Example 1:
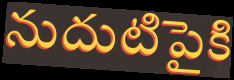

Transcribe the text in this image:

నుదుటిపైకి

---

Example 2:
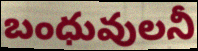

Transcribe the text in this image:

బంధువులనీ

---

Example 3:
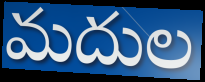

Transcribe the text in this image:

మదుల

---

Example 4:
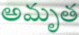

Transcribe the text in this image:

అమృత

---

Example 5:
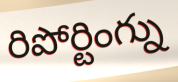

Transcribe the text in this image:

రిపోర్టింగ్ను